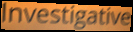
Investigative